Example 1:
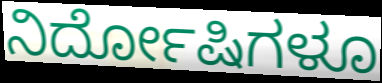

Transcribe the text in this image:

ನಿರ್ದೋಷಿಗಳೂ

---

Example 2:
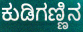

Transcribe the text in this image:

ಕುಡಿಗಣ್ಣಿನ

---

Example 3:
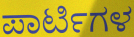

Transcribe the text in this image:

ಪಾರ್ಟಿಗಳ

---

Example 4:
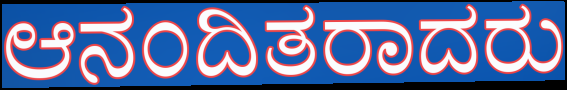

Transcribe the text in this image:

ಆನಂದಿತರಾದರು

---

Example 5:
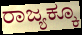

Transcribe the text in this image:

ರಾಜ್ಯಕ್ಕೂ